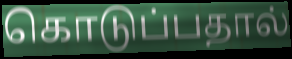
கொடுப்பதால்